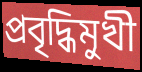
প্রবৃদ্ধিমুখী